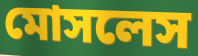
মোসলেস